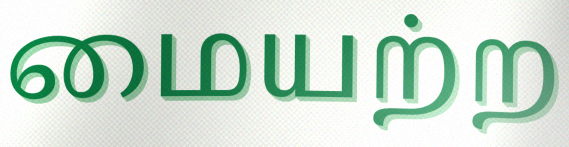
மையற்ற